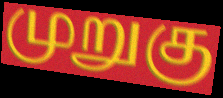
முறுகு